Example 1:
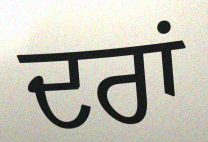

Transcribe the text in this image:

ਦਰਾਂ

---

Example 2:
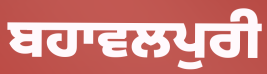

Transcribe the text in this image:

ਬਹਾਵਲਪੁਰੀ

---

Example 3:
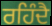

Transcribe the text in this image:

ਰਹਿੰਦੈ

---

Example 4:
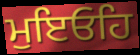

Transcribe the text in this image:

ਮੁਇਓਹਿ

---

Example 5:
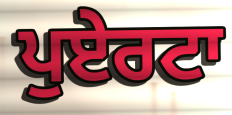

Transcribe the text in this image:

ਪੁਏਰਟਾ